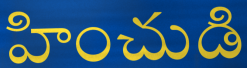
హించుడి